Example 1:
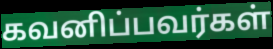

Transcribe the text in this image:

கவனிப்பவர்கள்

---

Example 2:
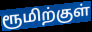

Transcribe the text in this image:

ரூமிற்குள்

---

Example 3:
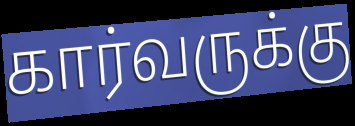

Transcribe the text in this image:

கார்வருக்கு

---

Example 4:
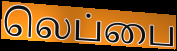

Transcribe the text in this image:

லெப்பை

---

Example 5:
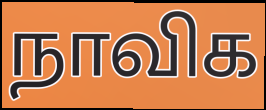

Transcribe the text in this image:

நாவிக